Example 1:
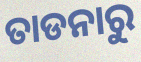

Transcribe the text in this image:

ତାଡନାରୁ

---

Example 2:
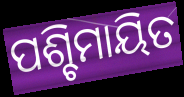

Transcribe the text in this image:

ପଶ୍ଚିମାୟିତ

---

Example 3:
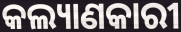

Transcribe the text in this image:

କଲ୍ୟାଣକାରୀ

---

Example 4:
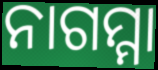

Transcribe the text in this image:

ନାଗମ୍ମା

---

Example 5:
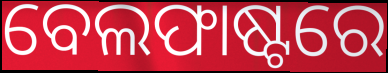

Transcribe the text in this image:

ବେଲଫାଷ୍ଟରେ